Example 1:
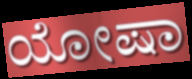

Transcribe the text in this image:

ಯೋಷಾ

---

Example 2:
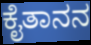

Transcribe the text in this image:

ಕೈತಾನನ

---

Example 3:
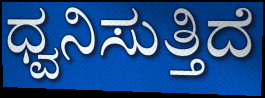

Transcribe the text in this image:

ಧ್ವನಿಸುತ್ತಿದೆ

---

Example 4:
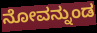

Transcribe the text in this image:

ನೋವನ್ನುಂಡ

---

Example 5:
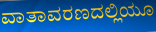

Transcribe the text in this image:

ವಾತಾವರಣದಲ್ಲಿಯೂ